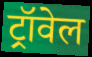
ट्रॉवेल